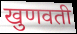
खुणवती